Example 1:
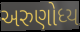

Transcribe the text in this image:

અરુણોધ્ય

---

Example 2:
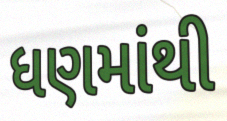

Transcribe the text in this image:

ધણમાંથી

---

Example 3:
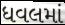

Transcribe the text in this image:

ધવલમાં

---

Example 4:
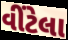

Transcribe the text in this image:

વીંટેલા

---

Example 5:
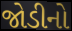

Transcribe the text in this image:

જોડીનો